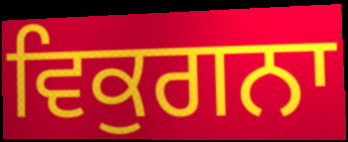
ਵਿਕੁਗਨਾ